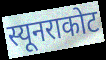
स्यूनराकोट